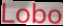
Lobo